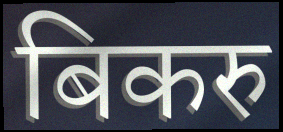
बिकरु